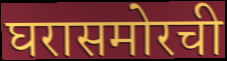
घरासमोरची